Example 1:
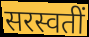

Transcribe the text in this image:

सरस्वतीं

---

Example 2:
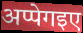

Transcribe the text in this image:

अप्पेगइए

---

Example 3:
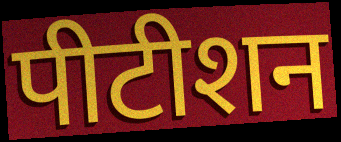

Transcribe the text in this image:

पीटीशन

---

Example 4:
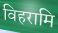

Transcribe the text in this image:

विहरामि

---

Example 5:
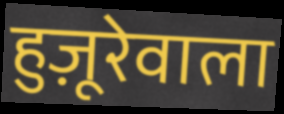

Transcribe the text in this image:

हुज़ूरेवाला